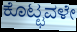
ಕೊಟ್ಟವಳೇ